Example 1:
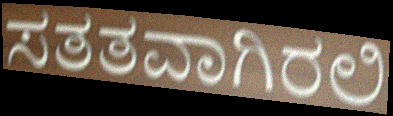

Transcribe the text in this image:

ಸತತವಾಗಿರಲಿ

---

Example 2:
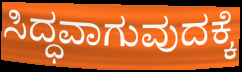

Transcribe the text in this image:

ಸಿದ್ಧವಾಗುವುದಕ್ಕೆ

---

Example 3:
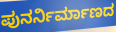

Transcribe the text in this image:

ಪುನರ್ನಿರ್ಮಾಣದ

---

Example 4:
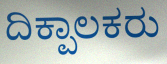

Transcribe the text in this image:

ದಿಕ್ಪಾಲಕರು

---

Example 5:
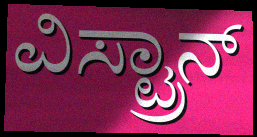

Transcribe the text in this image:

ವಿಸ್ಟ್ರಾನ್